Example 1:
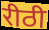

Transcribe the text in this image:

रीठी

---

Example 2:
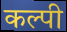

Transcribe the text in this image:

कल्पी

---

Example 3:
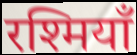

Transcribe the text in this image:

रश्मियाँ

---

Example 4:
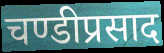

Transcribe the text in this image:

चण्डीप्रसाद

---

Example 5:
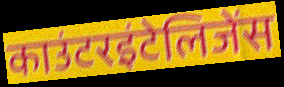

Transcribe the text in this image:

काउंटरइंटेलिजेंस